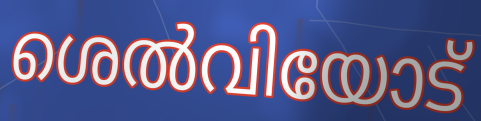
ശെൽവിയോട്